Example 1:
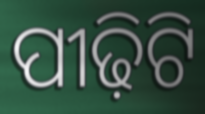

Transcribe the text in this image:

ପୀଢ଼ିଟି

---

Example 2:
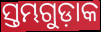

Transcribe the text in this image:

ସ୍ତମ୍ଭଗୁଡ଼ାକ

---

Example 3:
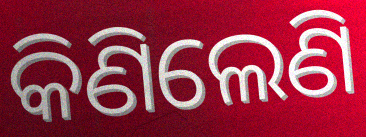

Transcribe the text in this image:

କିଣିଲେଣି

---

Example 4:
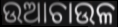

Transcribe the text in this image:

ଉଆଚାଉଳ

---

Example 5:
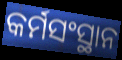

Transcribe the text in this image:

କର୍ମସଂସ୍ଥାନ